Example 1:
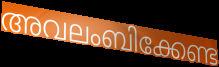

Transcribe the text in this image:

അവലംബിക്കേണ്ട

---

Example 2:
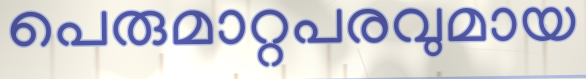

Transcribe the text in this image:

പെരുമാറ്റപരവുമായ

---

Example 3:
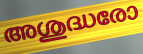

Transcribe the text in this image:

അശുദ്ധരോ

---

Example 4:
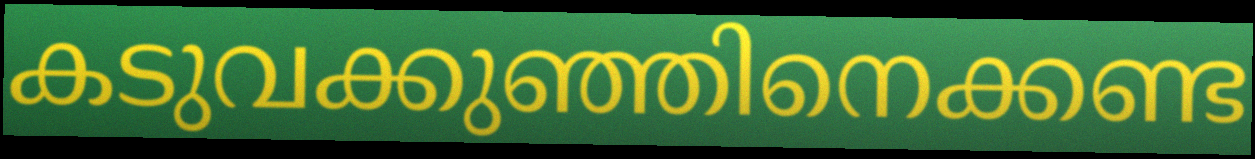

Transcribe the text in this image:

കടുവക്കുഞ്ഞിനെക്കണ്ട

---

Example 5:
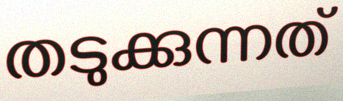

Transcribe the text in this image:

തടുക്കുന്നത്